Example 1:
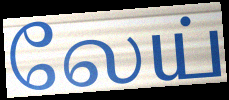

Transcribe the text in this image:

லேய்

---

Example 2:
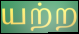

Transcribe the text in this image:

யற்ற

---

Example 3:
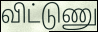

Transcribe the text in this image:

விட்டுணு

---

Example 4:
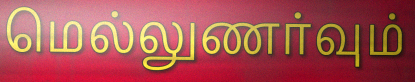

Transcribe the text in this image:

மெல்லுணர்வும்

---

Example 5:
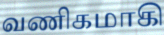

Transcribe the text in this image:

வணிகமாகி